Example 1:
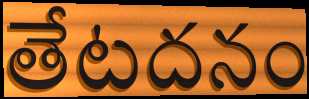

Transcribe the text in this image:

తేటదనం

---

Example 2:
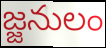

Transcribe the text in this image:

జ్జనులం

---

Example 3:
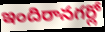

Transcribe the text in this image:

ఇందిరానగర్లో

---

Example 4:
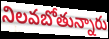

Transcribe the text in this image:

నిలవబోతున్నారు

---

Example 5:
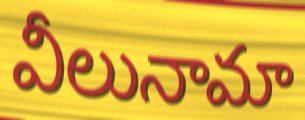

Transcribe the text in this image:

వీలునామా